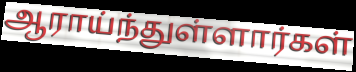
ஆராய்ந்துள்ளார்கள்